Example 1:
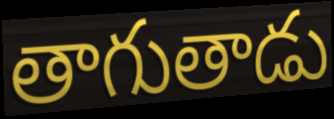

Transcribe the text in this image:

తాగుతాడు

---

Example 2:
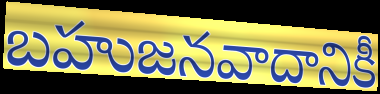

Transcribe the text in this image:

బహుజనవాదానికీ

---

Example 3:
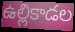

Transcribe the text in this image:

ఉల్లికాడల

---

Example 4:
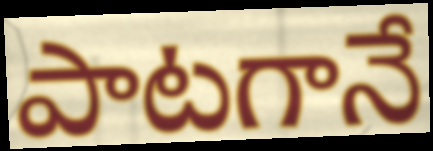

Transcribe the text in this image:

పాటగానే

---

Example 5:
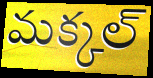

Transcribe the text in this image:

మక్కల్